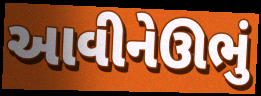
આવીનેઊભું